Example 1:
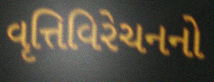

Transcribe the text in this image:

વૃત્તિવિરેચનનો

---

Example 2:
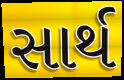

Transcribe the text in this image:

સાર્થ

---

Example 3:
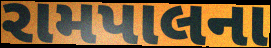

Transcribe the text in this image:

રામપાલના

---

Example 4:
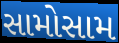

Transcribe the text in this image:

સામોસામ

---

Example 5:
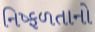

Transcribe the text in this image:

નિષ્ફળતાનો